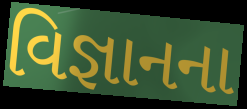
વિજ્ઞાનના